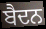
ਬੈਦਨ